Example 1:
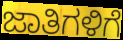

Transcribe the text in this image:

ಜಾತಿಗಳಿಗೆ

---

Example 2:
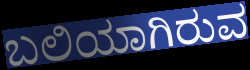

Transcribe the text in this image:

ಬಲಿಯಾಗಿರುವ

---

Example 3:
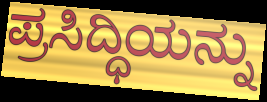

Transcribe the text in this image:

ಪ್ರಸಿದ್ಧಿಯನ್ನು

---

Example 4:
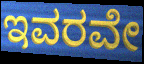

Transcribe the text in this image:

ಇವರವೇ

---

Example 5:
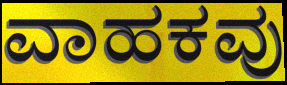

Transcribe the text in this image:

ವಾಹಕವು